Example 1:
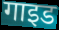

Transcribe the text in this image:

गाइड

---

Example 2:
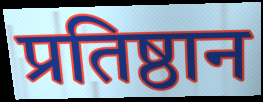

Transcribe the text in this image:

प्रतिष्ठान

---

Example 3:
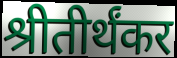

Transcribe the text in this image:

श्रीतीर्थंकर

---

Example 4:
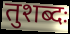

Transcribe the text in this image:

तुशब्दः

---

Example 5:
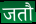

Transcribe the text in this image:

जतौ